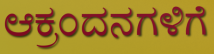
ಆಕ್ರಂದನಗಳಿಗೆ